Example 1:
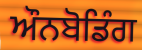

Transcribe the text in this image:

ਔਨਬੋਡਿੰਗ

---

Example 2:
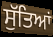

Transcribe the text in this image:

ਸੁੱਤਿਆਂ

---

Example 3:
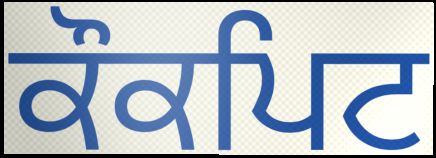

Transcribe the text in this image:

ਕੌਕਪਿਟ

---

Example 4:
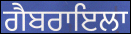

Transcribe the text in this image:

ਗੈਬਰਾਇਲਾ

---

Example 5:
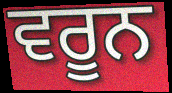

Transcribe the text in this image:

ਵਰੂਨ